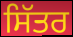
ਸਿੱਤਰ